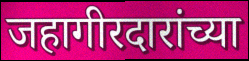
जहागीरदारांच्या